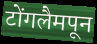
टोंगलैमपून